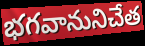
భగవానునిచేత